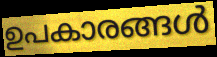
ഉപകാരങ്ങൾ